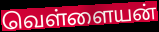
வெள்ளையன்